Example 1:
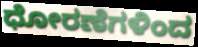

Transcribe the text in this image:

ಧೋರಣೆಗಳಿಂದ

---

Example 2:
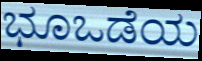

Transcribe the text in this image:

ಭೂಒಡೆಯ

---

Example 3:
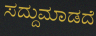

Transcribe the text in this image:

ಸದ್ದುಮಾಡದೆ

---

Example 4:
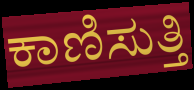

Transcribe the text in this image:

ಕಾಣಿಸುತ್ತಿ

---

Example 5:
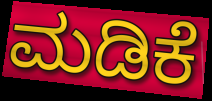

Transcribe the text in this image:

ಮಡಿಕೆ